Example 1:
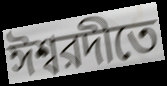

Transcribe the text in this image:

ঈশ্বরদীতে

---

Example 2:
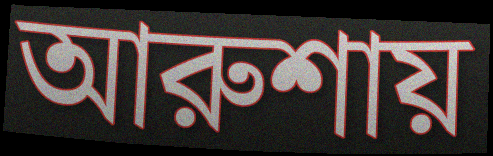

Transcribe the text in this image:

আরুশায়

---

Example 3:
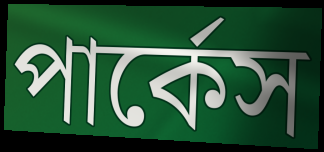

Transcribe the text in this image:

পার্কেস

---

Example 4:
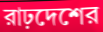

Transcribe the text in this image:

রাঢ়দেশের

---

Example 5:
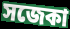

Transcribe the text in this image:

সজেকা